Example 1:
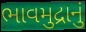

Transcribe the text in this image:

ભાવમુદ્રાનું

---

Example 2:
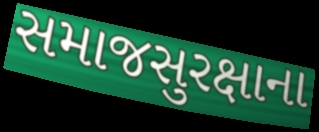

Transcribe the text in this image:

સમાજસુરક્ષાના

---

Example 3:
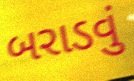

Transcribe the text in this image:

બરાડવું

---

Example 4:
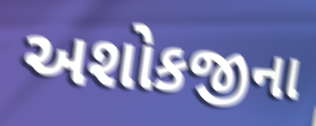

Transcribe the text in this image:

અશોકજીના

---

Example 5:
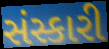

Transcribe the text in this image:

સંસ્કારી